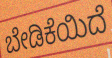
ಬೇಡಿಕೆಯಿದೆ